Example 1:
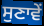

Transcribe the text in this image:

ਸੁਣਾਵੇਂ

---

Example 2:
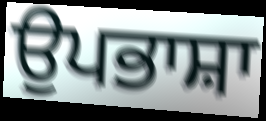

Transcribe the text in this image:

ਉਪਭਾਸ਼ਾ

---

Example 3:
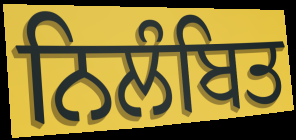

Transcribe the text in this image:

ਨਿਲੰਬਿਤ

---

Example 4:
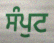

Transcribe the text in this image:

ਸੰਪੁਟ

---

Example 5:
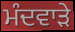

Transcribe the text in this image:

ਮੰਦਵਾੜੇ